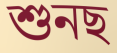
শুনছ